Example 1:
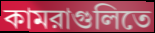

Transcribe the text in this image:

কামরাগুলিতে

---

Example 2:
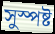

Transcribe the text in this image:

সুস্পষ্ট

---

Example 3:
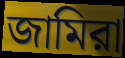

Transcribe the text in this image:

জামিরা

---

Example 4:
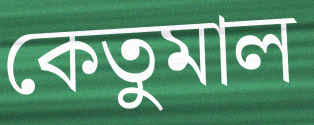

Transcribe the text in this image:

কেতুমাল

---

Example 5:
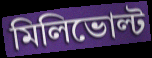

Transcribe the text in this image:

মিলিভোল্ট